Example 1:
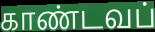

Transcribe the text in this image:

காண்டவப்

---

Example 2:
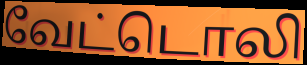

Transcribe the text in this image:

வேட்டொலி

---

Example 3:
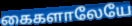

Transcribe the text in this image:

கைகளாலேயே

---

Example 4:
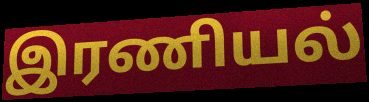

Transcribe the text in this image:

இரணியல்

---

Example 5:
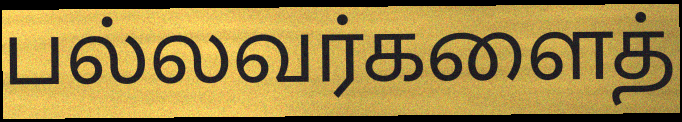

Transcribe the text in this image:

பல்லவர்களைத்